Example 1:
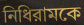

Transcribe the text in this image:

নিধিরামকে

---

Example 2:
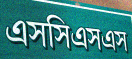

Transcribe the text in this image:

এসসিএসএস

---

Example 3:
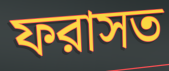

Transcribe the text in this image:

ফরাসত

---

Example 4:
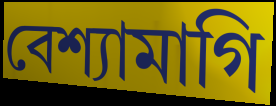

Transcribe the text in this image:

বেশ্যামাগি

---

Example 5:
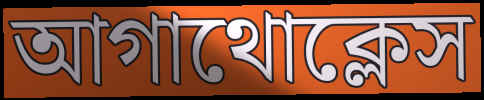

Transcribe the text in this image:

আগাথোক্লেস